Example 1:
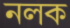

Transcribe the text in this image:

নলক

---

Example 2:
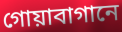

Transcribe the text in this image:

গোয়াবাগানে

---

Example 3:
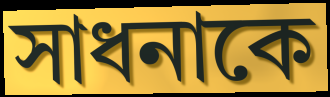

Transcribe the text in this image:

সাধনাকে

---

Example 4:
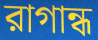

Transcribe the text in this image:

রাগান্ধ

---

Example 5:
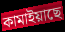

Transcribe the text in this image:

কামাইয়াছে